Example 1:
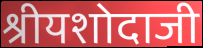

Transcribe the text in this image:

श्रीयशोदाजी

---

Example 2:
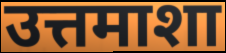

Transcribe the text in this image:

उत्तमाशा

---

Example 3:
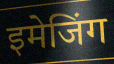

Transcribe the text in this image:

इमेजिंग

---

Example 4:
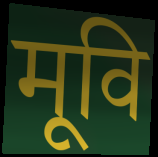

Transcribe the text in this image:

मूवि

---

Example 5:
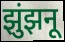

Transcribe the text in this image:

झुंझनू